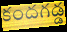
కందగడ్డ